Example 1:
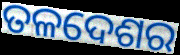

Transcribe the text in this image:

ତଳଦେଶର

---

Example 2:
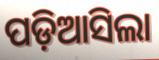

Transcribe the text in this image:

ପଡ଼ିଆସିଲା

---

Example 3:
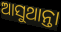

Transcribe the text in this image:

ଆସୁଥାନ୍ତା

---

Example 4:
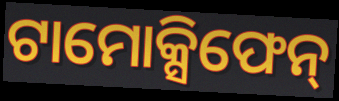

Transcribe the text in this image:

ଟାମୋକ୍ସିଫେନ୍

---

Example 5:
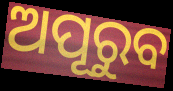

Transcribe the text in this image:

ଅପୂରୁବ